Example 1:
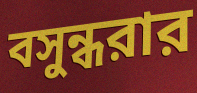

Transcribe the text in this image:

বসুন্ধরার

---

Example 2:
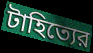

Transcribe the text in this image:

টাহিত্যের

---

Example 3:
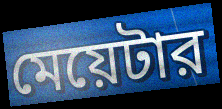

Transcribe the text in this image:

মেয়েটার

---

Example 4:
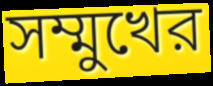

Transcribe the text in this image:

সম্মুখের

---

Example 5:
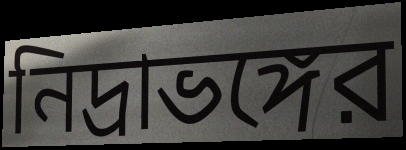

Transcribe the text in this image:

নিদ্রাভঙ্গের